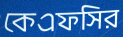
কেএফসির